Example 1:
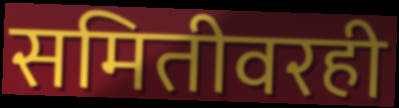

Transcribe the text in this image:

समितीवरही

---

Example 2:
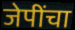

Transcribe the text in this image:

जेपींचा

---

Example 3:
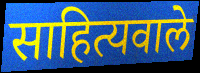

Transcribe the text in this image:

साहित्यवाले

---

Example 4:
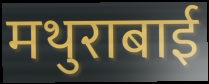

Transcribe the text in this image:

मथुराबाई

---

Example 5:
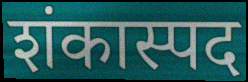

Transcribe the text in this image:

शंकास्पद